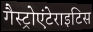
गैस्ट्रोएंटेराइटिस